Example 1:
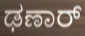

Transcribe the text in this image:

ಢಣಾರ್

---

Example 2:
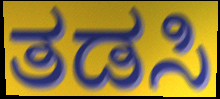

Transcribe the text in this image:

ತಡಸಿ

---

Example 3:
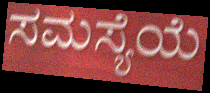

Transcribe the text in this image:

ಸಮಸ್ಯೆಯೆ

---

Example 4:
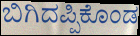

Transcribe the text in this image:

ಬಿಗಿದಪ್ಪಿಕೊಂಡ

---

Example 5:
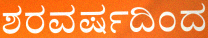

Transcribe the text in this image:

ಶರವರ್ಷದಿಂದ